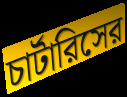
চার্টারিসের